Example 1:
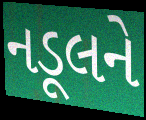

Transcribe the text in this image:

નડૂલને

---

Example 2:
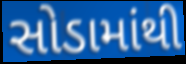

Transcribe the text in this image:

સોડામાંથી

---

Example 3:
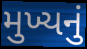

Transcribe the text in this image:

મુખ્યનું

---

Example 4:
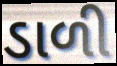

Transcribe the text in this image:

ડાળી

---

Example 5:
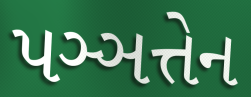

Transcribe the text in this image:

પઞ્ઞત્તેન